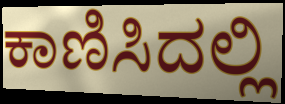
ಕಾಣಿಸಿದಲ್ಲಿ